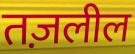
तज़लील